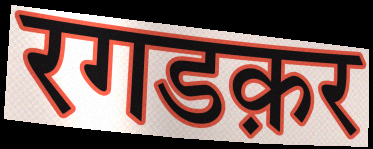
रगडक़र